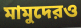
মামুদেরও